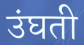
उंघती